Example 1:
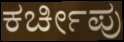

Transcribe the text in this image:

ಕರ್ಚೀಪು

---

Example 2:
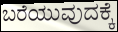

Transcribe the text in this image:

ಬರೆಯುವುದಕ್ಕೆ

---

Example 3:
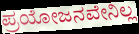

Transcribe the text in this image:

ಪ್ರಯೋಜನವೇನಿಲ್ಲ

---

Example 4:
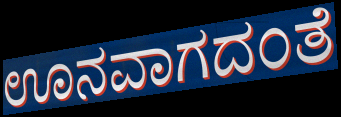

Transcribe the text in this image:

ಊನವಾಗದಂತೆ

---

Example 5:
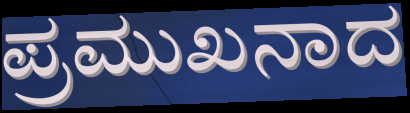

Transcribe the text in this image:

ಪ್ರಮುಖನಾದ